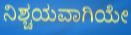
ನಿಶ್ಚಯವಾಗಿಯೇ